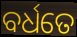
ବର୍ଧତେ